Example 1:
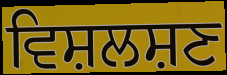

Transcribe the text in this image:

ਵਿਸ਼ਲਸ਼ਣ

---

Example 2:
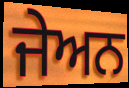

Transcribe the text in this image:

ਜੇਅਨ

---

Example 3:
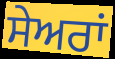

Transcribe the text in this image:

ਸੇਅਰਾਂ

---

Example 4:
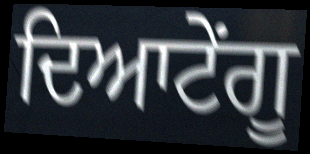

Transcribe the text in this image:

ਦਿਆਟੇਂਗੂ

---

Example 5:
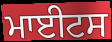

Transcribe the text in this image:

ਮਾਈਟਸ